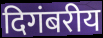
दिगंबरीय